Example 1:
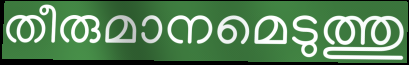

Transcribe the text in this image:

തീരുമാനമെടുത്തു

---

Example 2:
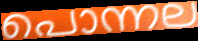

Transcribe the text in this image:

പൊന്നല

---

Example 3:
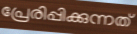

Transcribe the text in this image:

പ്രേരിപ്പിക്കുന്നത്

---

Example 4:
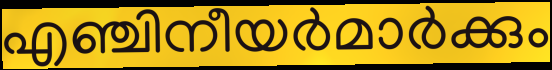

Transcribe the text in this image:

എഞ്ചിനീയർമാർക്കും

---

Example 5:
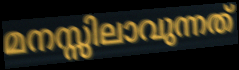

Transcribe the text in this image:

മനസ്സിലാവുന്നത്